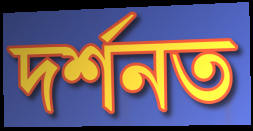
দৰ্শনত